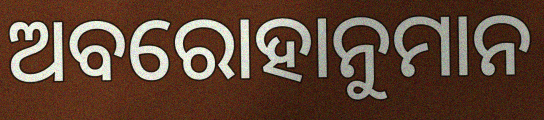
ଅବରୋହାନୁମାନ